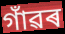
গাঁৱৰ